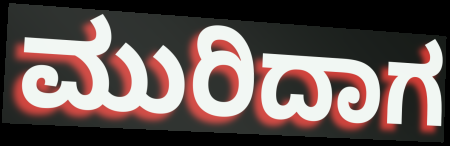
ಮುರಿದಾಗ